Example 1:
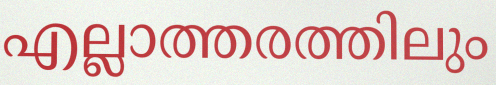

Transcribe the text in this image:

എല്ലാത്തരത്തിലും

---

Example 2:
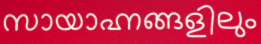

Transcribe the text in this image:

സായാഹ്നങ്ങളിലും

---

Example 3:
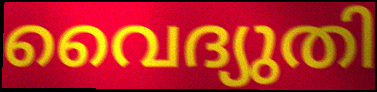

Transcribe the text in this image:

വൈദ്യുതി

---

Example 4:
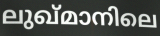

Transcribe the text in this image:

ലുഖ്മാനിലെ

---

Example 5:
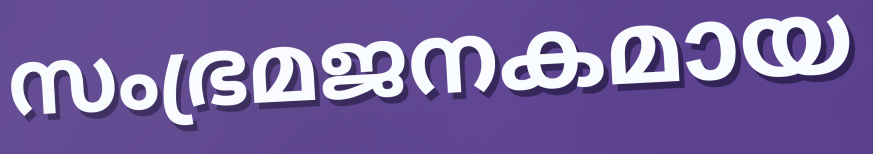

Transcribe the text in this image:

സംഭ്രമജനകമായ